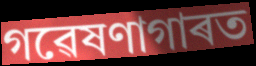
গৱেষণাগাৰত